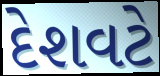
દેશવટે